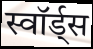
स्वॉर्ड्स